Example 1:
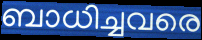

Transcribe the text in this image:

ബാധിച്ചവരെ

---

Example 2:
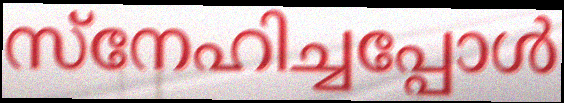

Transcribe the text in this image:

സ്നേഹിച്ചപ്പോൾ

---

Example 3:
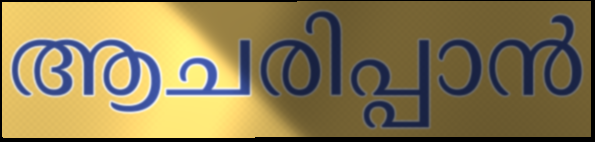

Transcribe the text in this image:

ആചരിപ്പാൻ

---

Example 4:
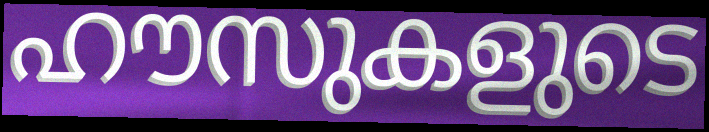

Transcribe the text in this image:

ഹൗസുകളുടെ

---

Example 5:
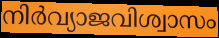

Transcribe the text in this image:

നിർവ്യാജവിശ്വാസം